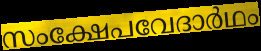
സംക്ഷേപവേദാർഥം